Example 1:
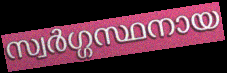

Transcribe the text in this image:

സ്വർഗ്ഗസ്ഥനായ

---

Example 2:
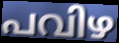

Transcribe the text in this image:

പവിഴ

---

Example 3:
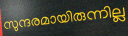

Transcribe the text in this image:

സുന്ദരമായിരുന്നില്ല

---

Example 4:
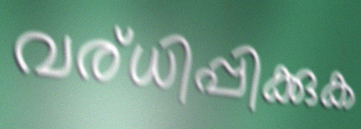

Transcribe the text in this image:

വര്ധിപ്പിക്കുക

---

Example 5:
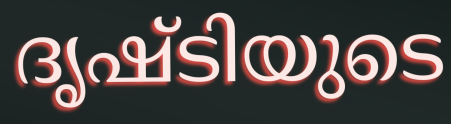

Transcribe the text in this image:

ദൃഷ്ടിയുടെ